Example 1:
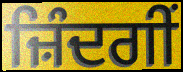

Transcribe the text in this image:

ਜ਼ਿੰਦਗੀਂ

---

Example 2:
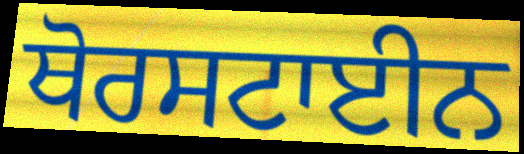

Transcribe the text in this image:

ਥੋਰਸਟਾਈਨ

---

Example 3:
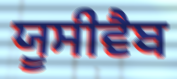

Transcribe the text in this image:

ਯੂਸੀਵੈਬ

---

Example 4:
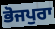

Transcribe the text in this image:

ਭੋਜਪੁਰਾ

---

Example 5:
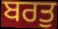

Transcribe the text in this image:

ਬਰਤੁ